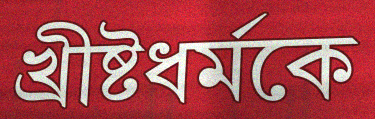
খ্রীষ্টধর্মকে